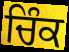
ਚਿੰਕ